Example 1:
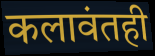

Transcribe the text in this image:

कलावंतही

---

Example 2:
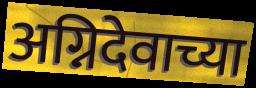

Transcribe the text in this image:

अग्निदेवाच्या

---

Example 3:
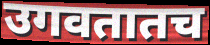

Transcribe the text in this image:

उगवतातच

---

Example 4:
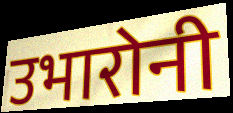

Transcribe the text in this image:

उभारोनी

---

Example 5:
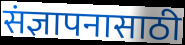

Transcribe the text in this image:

संज्ञापनासाठी